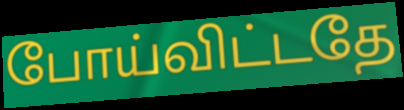
போய்விட்டதே